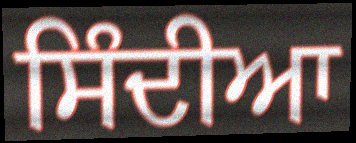
ਸਿੰਦੀਆ